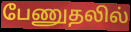
பேணுதலில்